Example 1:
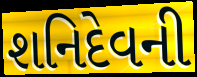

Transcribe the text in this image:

શનિદેવની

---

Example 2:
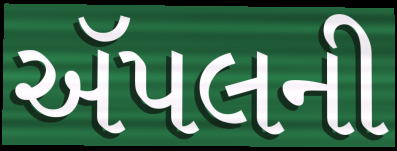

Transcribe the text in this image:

ઍપલની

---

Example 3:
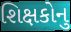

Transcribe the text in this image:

શિક્ષકોનુ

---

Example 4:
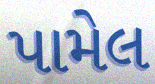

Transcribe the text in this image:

પામેલ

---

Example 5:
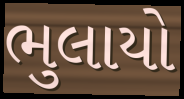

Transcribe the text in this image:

ભુલાયો